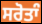
ਸਰੋਤਾੰ